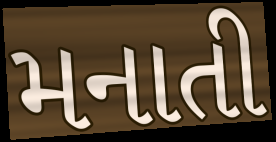
મનાતી